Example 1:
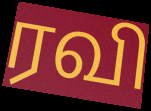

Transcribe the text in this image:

ரவி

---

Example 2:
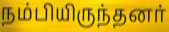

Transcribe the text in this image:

நம்பியிருந்தனர்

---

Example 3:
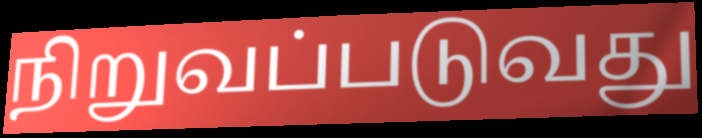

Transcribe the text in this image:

நிறுவப்படுவது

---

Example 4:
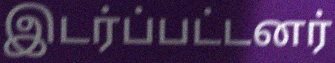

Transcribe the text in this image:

இடர்ப்பட்டனர்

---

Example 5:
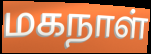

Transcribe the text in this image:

மகநாள்